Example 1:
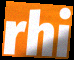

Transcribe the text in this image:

rhi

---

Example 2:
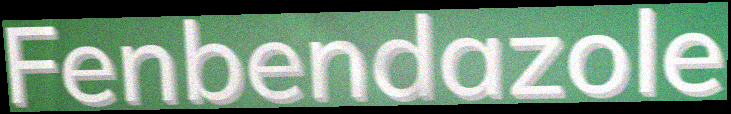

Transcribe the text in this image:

Fenbendazole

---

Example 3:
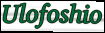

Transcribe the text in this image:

Ulofoshio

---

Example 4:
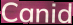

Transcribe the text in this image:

Canid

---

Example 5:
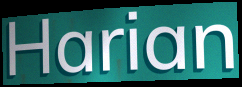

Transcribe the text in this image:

Harian